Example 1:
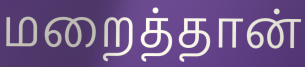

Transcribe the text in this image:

மறைத்தான்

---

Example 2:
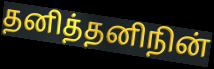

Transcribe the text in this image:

தனித்தனிநின்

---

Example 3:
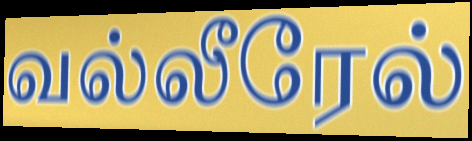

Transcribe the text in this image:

வல்லீரேல்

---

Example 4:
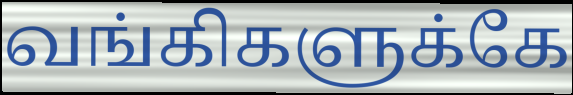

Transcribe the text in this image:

வங்கிகளுக்கே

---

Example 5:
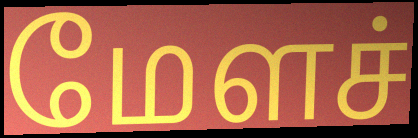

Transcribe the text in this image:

மேளச்